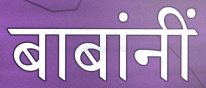
बाबांनीं